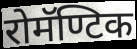
रोमॅण्टिक